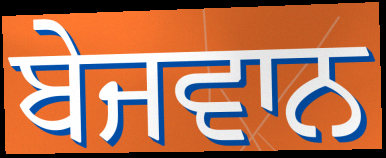
ਬੇਜਵਾਨ